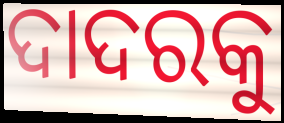
ଦାଦରକୁ